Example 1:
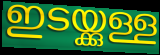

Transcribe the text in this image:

ഇടയ്ക്കുള്ള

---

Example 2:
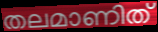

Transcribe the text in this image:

തലമാണിത്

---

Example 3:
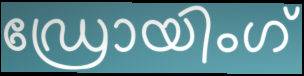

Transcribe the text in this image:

ഡ്രോയിംഗ്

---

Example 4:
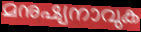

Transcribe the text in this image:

മനുഷ്യനാവുക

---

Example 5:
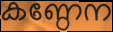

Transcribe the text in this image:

കണ്ഠേന